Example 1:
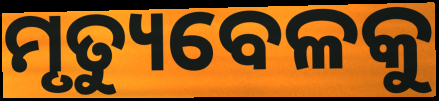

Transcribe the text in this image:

ମୃତ୍ୟୁବେଳକୁ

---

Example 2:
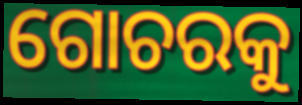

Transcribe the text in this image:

ଗୋଚରକୁ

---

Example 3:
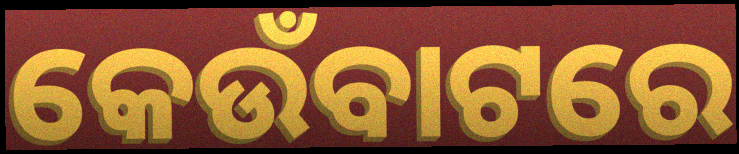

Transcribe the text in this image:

କେଉଁବାଟରେ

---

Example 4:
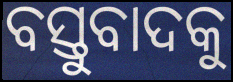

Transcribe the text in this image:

ବସ୍ତୁବାଦକୁ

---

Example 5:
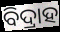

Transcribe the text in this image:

ବିଦ୍ରାହ